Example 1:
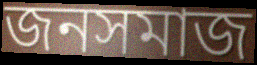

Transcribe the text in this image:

জনসমাজ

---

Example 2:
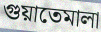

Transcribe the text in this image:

গুয়াতেমালা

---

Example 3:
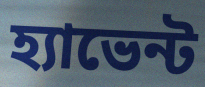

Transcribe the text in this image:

হ্যাভেন্ট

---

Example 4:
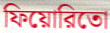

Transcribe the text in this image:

ফিয়োরিতো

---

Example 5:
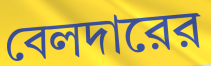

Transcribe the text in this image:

বেলদারের